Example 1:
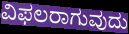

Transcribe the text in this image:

ವಿಫಲರಾಗುವುದು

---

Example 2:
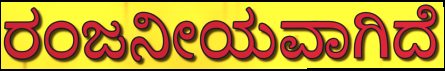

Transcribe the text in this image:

ರಂಜನೀಯವಾಗಿದೆ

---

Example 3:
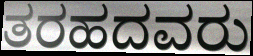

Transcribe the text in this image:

ತರಹದವರು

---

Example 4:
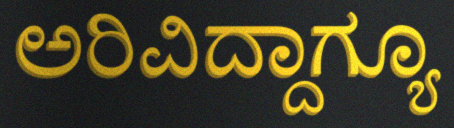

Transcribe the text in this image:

ಅರಿವಿದ್ದಾಗ್ಯೂ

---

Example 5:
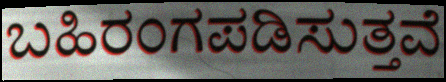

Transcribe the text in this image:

ಬಹಿರಂಗಪಡಿಸುತ್ತವೆ